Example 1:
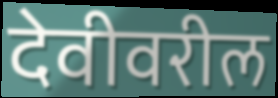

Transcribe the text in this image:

देवीवरील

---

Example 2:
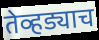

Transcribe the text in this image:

तेव्हड्याच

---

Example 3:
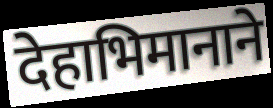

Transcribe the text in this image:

देहाभिमानाने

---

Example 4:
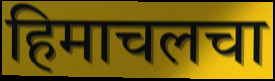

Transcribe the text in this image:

हिमाचलचा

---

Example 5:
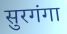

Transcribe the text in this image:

सुरगंगा